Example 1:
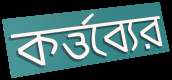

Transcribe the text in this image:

কর্ত্তব্যের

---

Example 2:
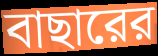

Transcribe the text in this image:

বাছারের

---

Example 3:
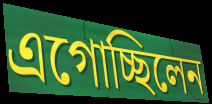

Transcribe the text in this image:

এগোচ্ছিলেন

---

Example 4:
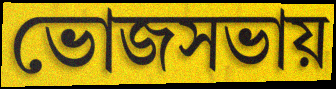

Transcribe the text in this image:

ভোজসভায়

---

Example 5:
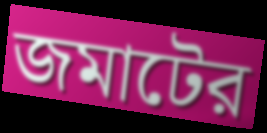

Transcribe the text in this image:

জমাটের